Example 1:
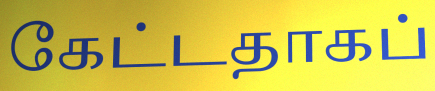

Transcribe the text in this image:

கேட்டதாகப்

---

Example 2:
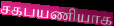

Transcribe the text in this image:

சகபயணியாக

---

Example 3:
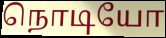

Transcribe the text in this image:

நொடியோ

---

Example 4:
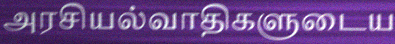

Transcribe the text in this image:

அரசியல்வாதிகளுடைய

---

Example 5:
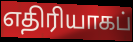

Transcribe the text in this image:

எதிரியாகப்